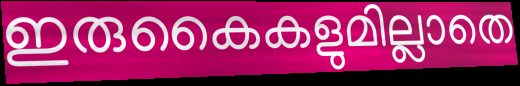
ഇരുകൈകളുമില്ലാതെ